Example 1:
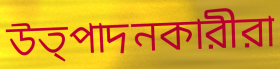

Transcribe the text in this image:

উত্পাদনকারীরা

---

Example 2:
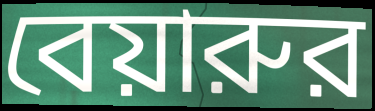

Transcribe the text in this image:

বেয়ারুর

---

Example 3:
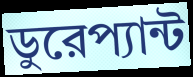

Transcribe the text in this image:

ডুরেপ্যান্ট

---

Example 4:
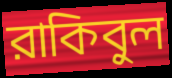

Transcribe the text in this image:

রাকিবুল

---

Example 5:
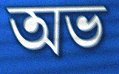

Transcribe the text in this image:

অভ